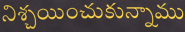
నిశ్చయించుకున్నాము